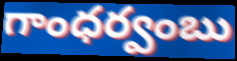
గాంధర్వంబు